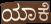
ಯಾಕೆ